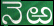
నెఱ